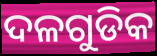
ଦଳଗୁଡିକ